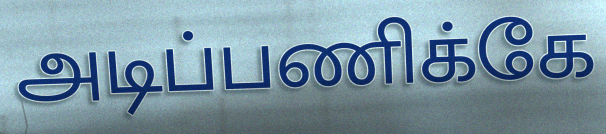
அடிப்பணிக்கே